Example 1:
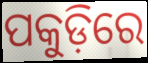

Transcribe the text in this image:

ପକୁଡ଼ିରେ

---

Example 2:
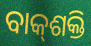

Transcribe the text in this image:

ବାକ୍‍ଶକ୍ତି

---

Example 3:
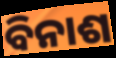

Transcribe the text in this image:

ବିନାଶ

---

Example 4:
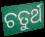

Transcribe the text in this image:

ଚତୁର୍ଥ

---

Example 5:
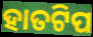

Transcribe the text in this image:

ହାତଟିପ